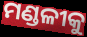
ମଣ୍ଡଳୀକୁ